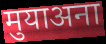
मुयाअना